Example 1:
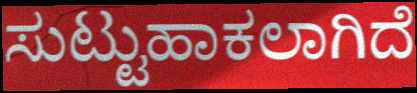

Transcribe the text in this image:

ಸುಟ್ಟುಹಾಕಲಾಗಿದೆ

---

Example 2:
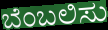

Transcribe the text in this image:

ಬೆಂಬಲಿಸು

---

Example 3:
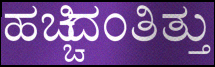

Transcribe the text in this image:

ಹಚ್ಚಿದಂತಿತ್ತು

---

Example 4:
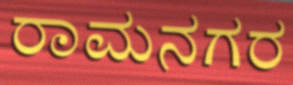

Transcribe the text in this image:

ರಾಮನಗರ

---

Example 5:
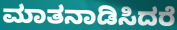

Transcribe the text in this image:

ಮಾತನಾಡಿಸಿದರೆ